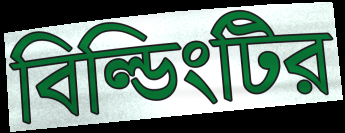
বিল্ডিংটির